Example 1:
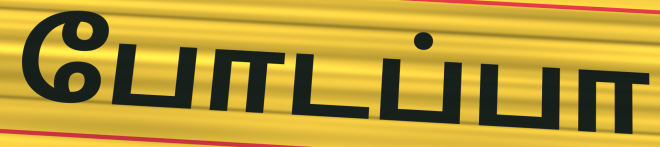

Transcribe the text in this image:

போடப்பா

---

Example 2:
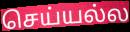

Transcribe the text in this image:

செய்யல்ல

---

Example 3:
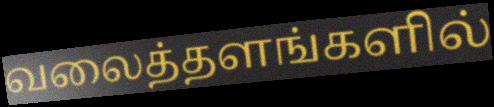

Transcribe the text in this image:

வலைத்தளங்களில்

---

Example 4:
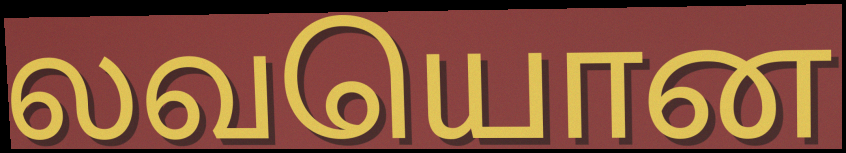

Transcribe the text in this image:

லவயொன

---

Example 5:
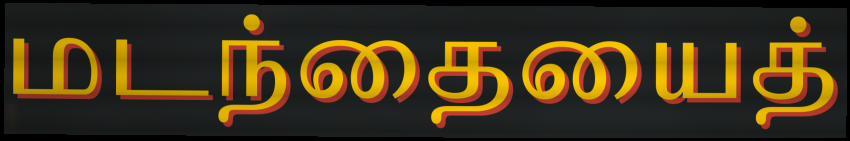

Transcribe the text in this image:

மடந்தையைத்